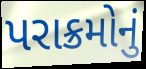
પરાક્રમોનું